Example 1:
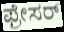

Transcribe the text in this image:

ಫ್ರೇಸರ್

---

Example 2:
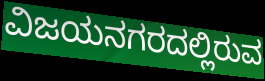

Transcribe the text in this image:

ವಿಜಯನಗರದಲ್ಲಿರುವ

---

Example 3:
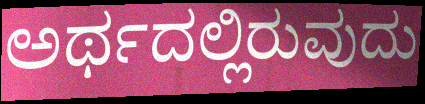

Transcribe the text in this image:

ಅರ್ಥದಲ್ಲಿರುವುದು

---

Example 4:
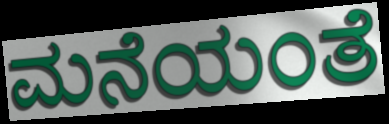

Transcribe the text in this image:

ಮನೆಯಂತೆ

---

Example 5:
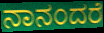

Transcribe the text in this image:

ನಾನಂದರೆ